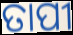
ତାପୀ